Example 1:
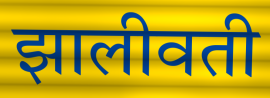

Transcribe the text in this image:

झालीवती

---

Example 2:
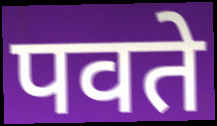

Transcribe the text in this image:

पवते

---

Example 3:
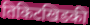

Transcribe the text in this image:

तिकिटखिडकी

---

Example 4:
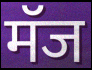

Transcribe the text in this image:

मॅज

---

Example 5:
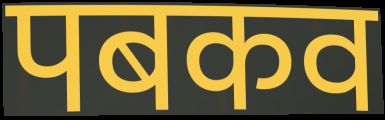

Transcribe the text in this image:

पबकव